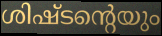
ശിഷ്ടന്റെയും